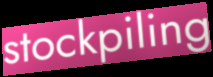
stockpiling